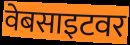
वेबसाइटवर